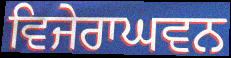
ਵਿਜੇਰਾਘਵਨ